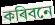
কৰিবনে